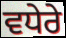
ਵਧੇਰੇ